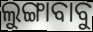
ଲୁଙ୍ଗାବାବୁ